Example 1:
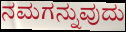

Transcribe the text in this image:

ನಮಗನ್ನುವುದು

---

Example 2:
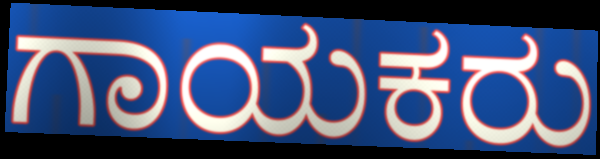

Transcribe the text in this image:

ಗಾಯಕರು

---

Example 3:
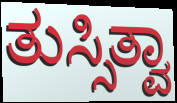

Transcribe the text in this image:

ತುಸ್ಸಿತ್ವಾ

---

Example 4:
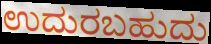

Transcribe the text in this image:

ಉದುರಬಹುದು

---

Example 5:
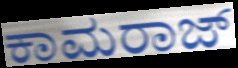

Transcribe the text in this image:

ಕಾಮರಾಜ್